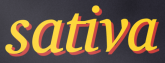
sativa